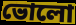
ভোলো